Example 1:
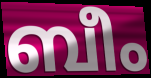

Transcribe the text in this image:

ബീം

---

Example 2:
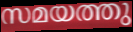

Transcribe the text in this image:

സമയത്തു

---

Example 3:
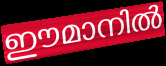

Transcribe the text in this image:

ഈമാനിൽ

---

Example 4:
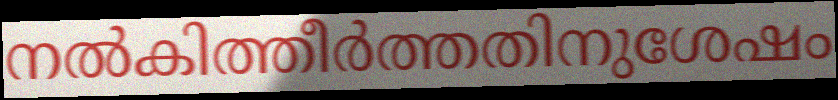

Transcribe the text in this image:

നൽകിത്തീർത്തതിനുശേഷം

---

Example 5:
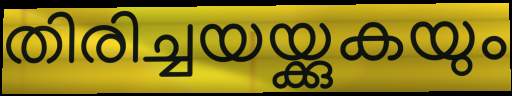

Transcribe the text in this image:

തിരിച്ചയയ്ക്കുകയും